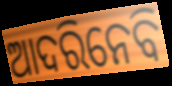
ଆଦରିନେବି